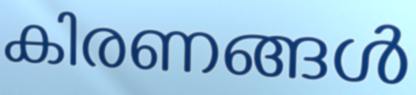
കിരണങ്ങൾ